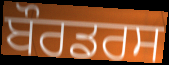
ਬੌਰਡਰਸ